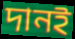
দানই